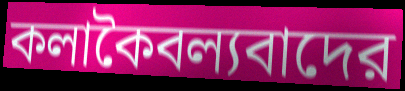
কলাকৈবল্যবাদের